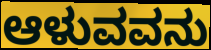
ಆಳುವವನು